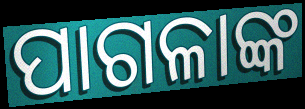
ପାଗଳାଙ୍କ